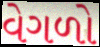
વેગળો